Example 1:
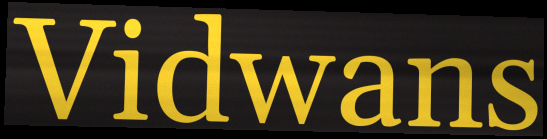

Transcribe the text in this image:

Vidwans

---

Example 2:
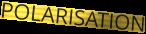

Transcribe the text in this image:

POLARISATION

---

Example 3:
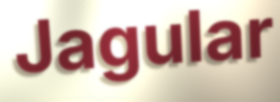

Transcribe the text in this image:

Jagular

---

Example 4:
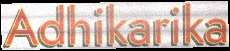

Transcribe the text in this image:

Adhikarika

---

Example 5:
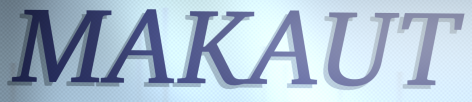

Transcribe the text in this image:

MAKAUT